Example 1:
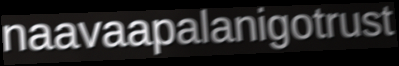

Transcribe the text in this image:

naavaapalanigotrust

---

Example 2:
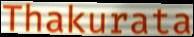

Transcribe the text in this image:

Thakurata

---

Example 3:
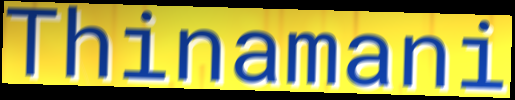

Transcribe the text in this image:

Thinamani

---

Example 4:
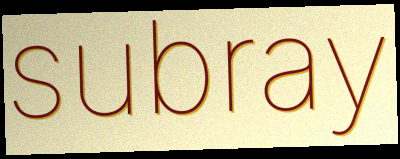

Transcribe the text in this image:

subray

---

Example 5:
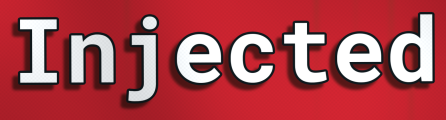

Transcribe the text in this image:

Injected